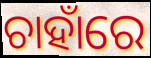
ଚାହାଁରେ